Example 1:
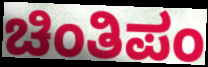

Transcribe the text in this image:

ಚಿಂತಿಪಂ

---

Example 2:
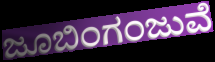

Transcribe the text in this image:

ಜೂಬಿಂಗಂಜುವೆ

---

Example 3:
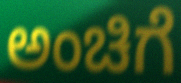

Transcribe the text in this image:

ಅಂಚಿಗೆ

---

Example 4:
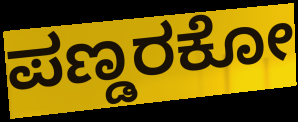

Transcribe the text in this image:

ಪಣ್ಡರಕೋ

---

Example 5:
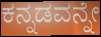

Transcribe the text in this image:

ಕನ್ನಡವನ್ನೇ